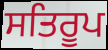
ਸਤਿਰੂਪ